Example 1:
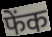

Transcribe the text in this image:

फेंक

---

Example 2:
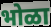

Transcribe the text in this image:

भोळा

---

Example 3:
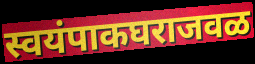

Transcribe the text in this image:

स्वयंपाकघराजवळ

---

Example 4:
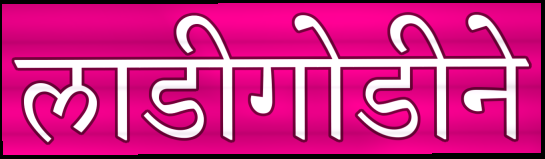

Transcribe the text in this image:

लाडीगोडीने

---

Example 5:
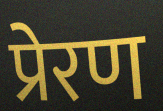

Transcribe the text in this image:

प्रेरण